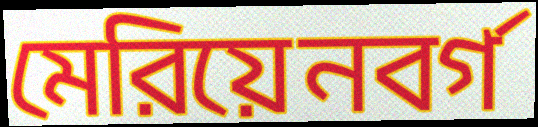
মেরিয়েনবর্গ